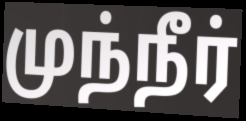
முந்நீர்